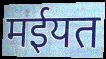
मईयत